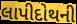
લાપીદોથની